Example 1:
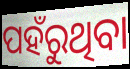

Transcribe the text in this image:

ପହଁରୁଥିବା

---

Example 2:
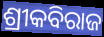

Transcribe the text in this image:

ଶ୍ରୀକବିରାଜ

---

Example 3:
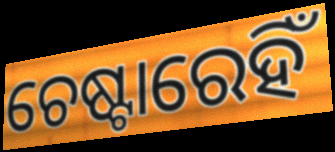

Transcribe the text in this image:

ଚେଷ୍ଟାରେହିଁ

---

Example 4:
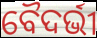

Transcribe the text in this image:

ବୈଦର୍ଭୀ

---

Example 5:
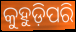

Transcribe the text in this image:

କୁହୁଡ଼ିପରି